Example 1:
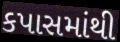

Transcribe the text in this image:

કપાસમાંથી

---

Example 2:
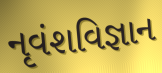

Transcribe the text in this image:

નૃવંશવિજ્ઞાન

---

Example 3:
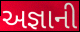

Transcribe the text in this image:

અજ્ઞાની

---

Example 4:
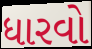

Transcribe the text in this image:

ધારવો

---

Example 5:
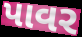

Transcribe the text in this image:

પાવર